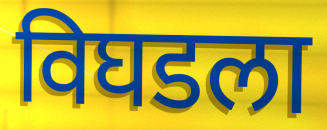
विघडला